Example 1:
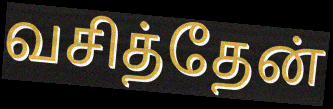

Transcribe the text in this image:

வசித்தேன்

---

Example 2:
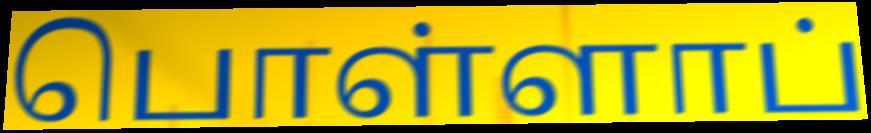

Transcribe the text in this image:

பொள்ளாப்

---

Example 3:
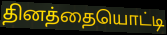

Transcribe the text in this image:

தினத்தையொட்டி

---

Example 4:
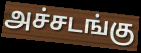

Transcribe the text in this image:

அச்சடங்கு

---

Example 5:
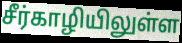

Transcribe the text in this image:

சீர்காழியிலுள்ள